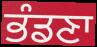
ਭੰਡਣਾ